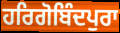
ਹਰਿਗੋਬਿੰਦਪੁਰਾ